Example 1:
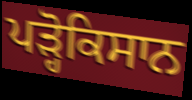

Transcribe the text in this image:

ਪੜ੍ਹੋਕਿਸਾਨ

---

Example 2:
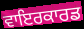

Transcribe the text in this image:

ਵਾਇਰਕਾਰਡ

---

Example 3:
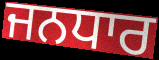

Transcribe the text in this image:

ਜਨਧਾਰ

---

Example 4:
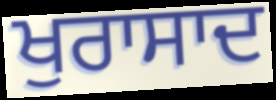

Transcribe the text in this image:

ਖੁਰਾਸਾਦ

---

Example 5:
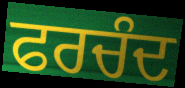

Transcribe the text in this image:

ਫਰਚੰਦ